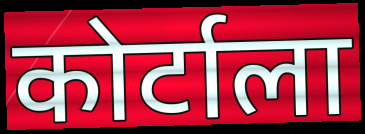
कोर्टाला